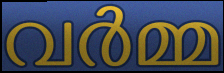
വർമ്മ